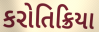
કરોતિક્રિયા